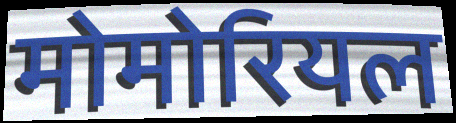
मोमोरियल